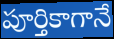
పూర్తికాగానే